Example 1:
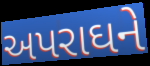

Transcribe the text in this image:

અપરાઘને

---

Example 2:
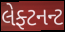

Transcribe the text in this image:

લેફ્ટનન્ટ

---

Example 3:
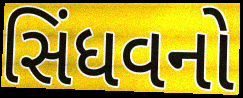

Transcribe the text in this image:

સિંધવનો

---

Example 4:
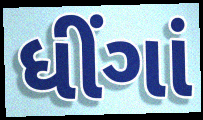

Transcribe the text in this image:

ધીંગાં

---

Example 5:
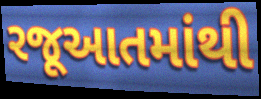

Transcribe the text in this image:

રજૂઆતમાંથી